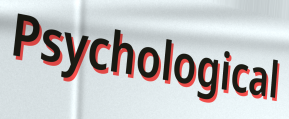
Psychological